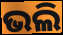
ଭଲି